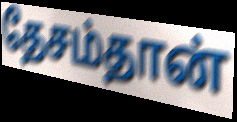
தேசம்தான்